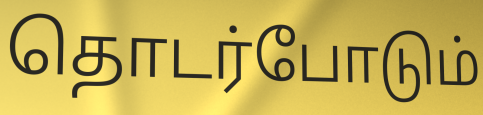
தொடர்போடும்